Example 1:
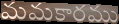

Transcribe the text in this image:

మమకారము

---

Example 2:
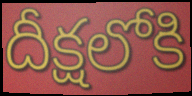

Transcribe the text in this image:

దీక్షలోకి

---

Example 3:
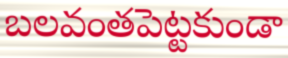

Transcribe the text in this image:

బలవంతపెట్టకుండా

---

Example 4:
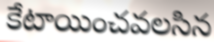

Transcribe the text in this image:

కేటాయించవలసిన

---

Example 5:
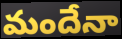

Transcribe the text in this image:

మందేనా